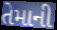
તેમાની